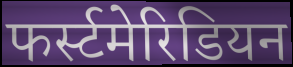
फर्स्टमेरिडियन